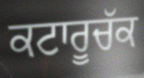
ਕਟਾਰੂਚੱਕ